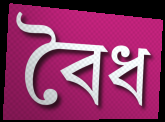
বৈধ